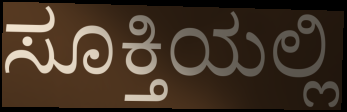
ಸೂಕ್ತಿಯಲ್ಲಿ